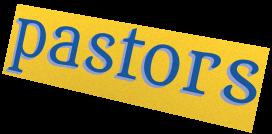
pastors